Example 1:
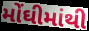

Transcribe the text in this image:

મોંઘીમાંથી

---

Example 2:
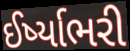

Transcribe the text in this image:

ઈર્ષ્યાભરી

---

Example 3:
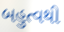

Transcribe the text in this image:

બહુત્વથી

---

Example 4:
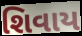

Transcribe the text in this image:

શિવાય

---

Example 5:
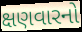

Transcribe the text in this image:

ક્ષણવારનો